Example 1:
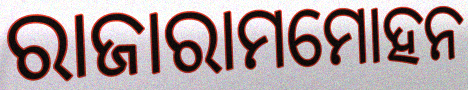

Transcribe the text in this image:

ରାଜାରାମମୋହନ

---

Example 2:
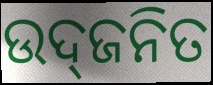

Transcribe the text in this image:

ଉଦ୍‌ଜନିତ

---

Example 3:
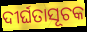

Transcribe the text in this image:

ଦୀର୍ଘତାସୂଚକ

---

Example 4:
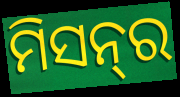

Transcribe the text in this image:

ମିସନ୍‌ର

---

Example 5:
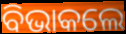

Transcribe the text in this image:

ବିଭାକଲେ